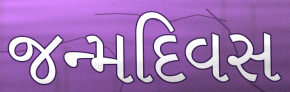
જન્મદિવસ